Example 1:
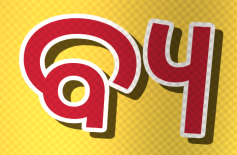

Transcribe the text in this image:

ବ୍ୟ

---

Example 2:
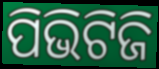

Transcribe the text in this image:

ପିଭିଟିଜି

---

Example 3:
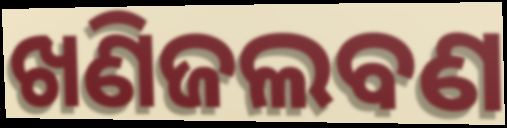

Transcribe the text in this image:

ଖଣିଜଲବଣ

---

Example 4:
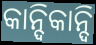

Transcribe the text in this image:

କାନ୍ଦିକାନ୍ଦି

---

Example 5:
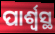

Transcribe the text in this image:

ପାର୍ଶ୍ୱସ୍ଥ